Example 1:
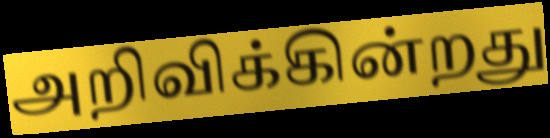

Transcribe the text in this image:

அறிவிக்கின்றது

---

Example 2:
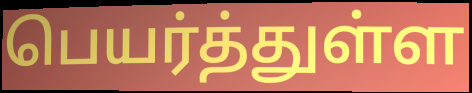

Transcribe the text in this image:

பெயர்த்துள்ள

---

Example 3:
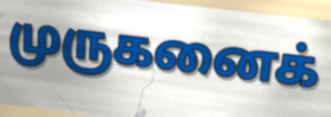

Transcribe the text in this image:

முருகனைக்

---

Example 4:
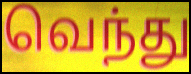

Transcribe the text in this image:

வெந்து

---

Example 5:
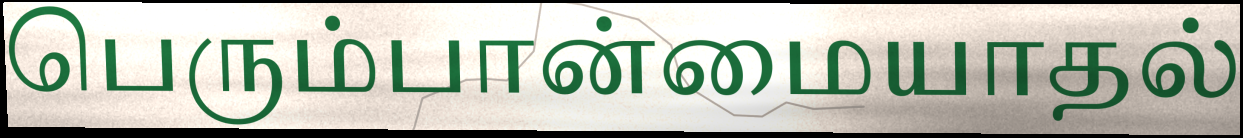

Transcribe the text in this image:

பெரும்பான்மையாதல்